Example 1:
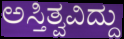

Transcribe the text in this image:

ಅಸ್ತಿತ್ವವಿದ್ದು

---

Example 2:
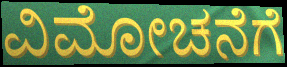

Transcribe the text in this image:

ವಿಮೋಚನೆಗೆ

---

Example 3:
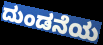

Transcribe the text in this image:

ದುಂಡನೆಯ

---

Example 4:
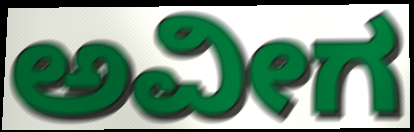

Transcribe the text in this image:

ಅವೀಗ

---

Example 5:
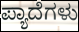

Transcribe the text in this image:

ಪ್ಯಾದೆಗಳು